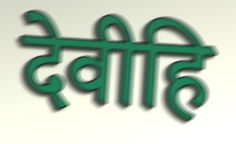
देवीहि